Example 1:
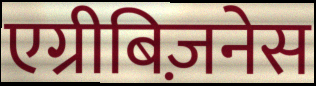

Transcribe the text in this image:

एग्रीबिज़नेस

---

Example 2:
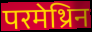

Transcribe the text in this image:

परमेथ्रिन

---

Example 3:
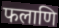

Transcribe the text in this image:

फलाणि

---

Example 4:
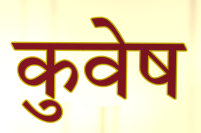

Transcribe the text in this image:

कुवेष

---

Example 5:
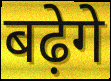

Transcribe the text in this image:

बढ़ेगे